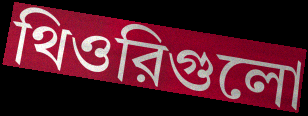
থিওরিগুলো